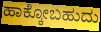
ಹಾಕ್ಕೋಬಹುದು